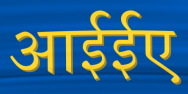
आईईए